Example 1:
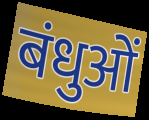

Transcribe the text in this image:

बंधुओं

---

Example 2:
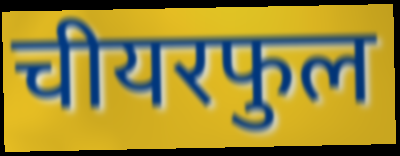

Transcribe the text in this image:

चीयरफुल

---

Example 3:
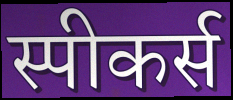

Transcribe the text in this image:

स्पीकर्स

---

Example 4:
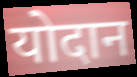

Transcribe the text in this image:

योदान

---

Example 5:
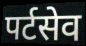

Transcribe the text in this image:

पर्टसेव